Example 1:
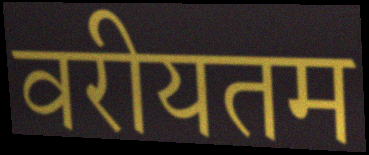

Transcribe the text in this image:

वरीयतम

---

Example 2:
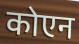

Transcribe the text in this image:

कोएन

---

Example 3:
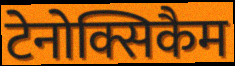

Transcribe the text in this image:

टेनोक्सिकैम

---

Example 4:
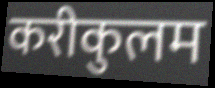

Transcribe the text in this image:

करीकुलम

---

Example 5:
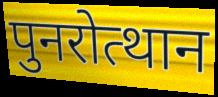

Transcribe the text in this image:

पुनरोत्थान